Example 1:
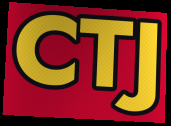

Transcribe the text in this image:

CTJ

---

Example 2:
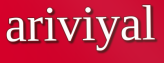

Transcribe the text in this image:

ariviyal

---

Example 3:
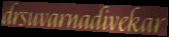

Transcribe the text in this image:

drsuvarnadivekar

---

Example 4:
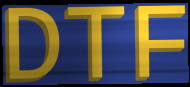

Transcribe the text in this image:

DTF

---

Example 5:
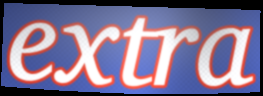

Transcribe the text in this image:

extra